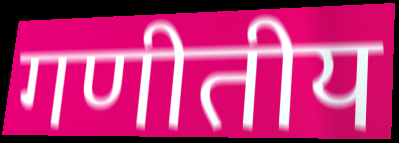
गणीतीय